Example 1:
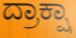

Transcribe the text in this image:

ದ್ರಾಕ್ಷಾ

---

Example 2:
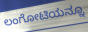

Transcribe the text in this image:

ಲಂಗೋಟಿಯನ್ನೂ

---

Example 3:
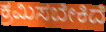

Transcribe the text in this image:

ಕ್ರಮಿಸಬೇಕಿದೆ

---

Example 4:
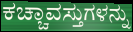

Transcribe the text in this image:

ಕಚ್ಚಾವಸ್ತುಗಳನ್ನು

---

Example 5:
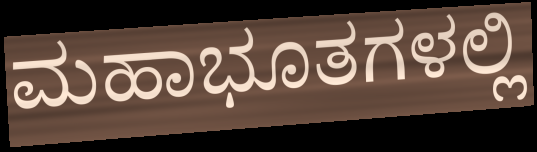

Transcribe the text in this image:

ಮಹಾಭೂತಗಳಲ್ಲಿ